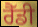
ਰੈੱਡੀ